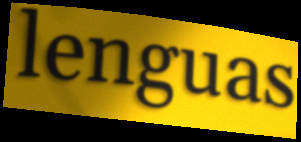
lenguas